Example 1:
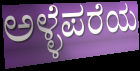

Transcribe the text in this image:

ಅಳ್ಳೆಪರೆಯ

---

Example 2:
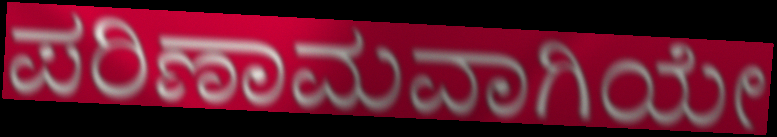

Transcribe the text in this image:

ಪರಿಣಾಮವಾಗಿಯೇ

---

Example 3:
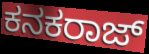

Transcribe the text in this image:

ಕನಕರಾಜ್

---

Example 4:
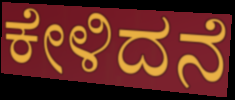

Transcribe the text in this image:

ಕೇಳಿದನೆ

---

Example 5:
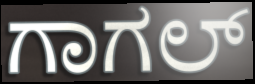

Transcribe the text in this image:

ಗಾಗಲ್